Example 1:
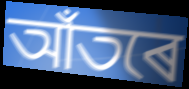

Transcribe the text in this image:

আঁতৰে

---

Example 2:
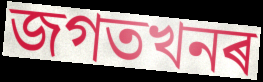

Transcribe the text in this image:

জগতখনৰ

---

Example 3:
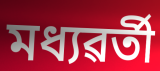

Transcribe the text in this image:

মধ্যৱৰ্তী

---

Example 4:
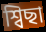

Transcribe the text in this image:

শ্বিছা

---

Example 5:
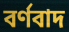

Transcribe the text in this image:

বৰ্ণবাদ